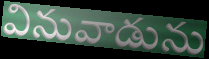
వినువాడును